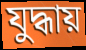
যুদ্ধায়